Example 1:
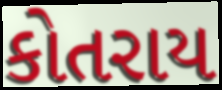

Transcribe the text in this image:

કોતરાય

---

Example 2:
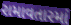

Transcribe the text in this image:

રામાવતારમાં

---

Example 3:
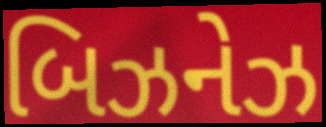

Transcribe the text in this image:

બિઝનેઝ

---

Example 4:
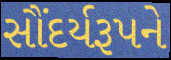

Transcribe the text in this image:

સૌંદર્યરૂપને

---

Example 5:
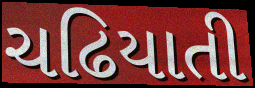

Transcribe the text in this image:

ચઢિયાતી